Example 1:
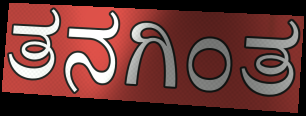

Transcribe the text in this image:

ತನಗಿಂತ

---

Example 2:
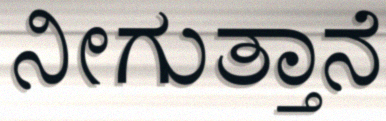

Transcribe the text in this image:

ನೀಗುತ್ತಾನೆ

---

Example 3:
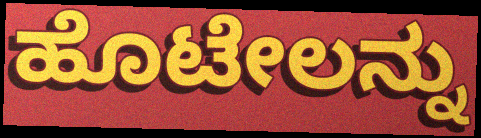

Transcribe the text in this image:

ಹೊಟೇಲನ್ನು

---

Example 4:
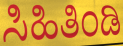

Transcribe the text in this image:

ಸಿಹಿತಿಂಡಿ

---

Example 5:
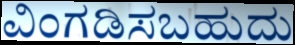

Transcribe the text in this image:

ವಿಂಗಡಿಸಬಹುದು